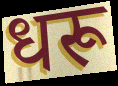
धरू